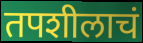
तपशीलाचं